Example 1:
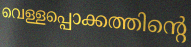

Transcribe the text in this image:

വെള്ളപ്പൊക്കത്തിന്റെ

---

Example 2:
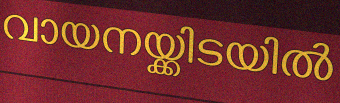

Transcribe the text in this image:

വായനയ്ക്കിടയിൽ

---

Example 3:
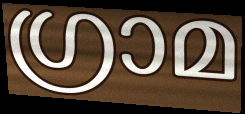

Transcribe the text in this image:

ഗ്രാമ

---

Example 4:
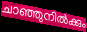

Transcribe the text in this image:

ചാഞ്ഞുനിൽക്കും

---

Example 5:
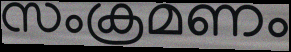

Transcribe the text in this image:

സംക്രമണം